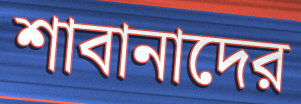
শাবানাদের